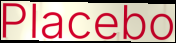
Placebo